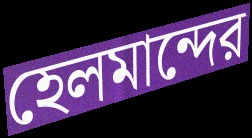
হেলমান্দের